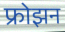
फ्रोझन